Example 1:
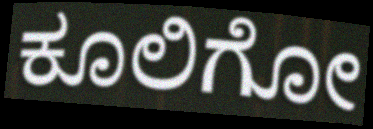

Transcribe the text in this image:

ಕೂಲಿಗೋ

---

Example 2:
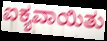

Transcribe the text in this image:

ಐಕ್ಯವಾಯಿತು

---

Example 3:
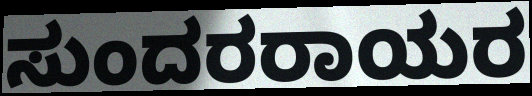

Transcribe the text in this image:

ಸುಂದರರಾಯರ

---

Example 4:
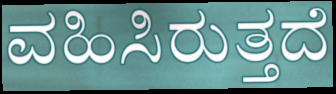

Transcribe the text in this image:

ವಹಿಸಿರುತ್ತದೆ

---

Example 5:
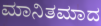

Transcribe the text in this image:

ಮಾನಿತಮಾದ